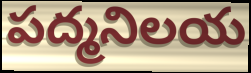
పద్మనిలయ